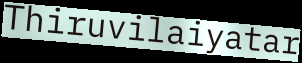
Thiruvilaiyatar